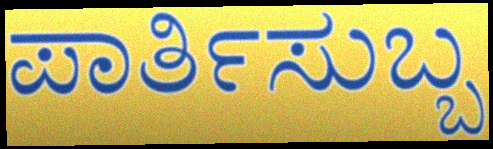
ಪಾರ್ತಿಸುಬ್ಬ